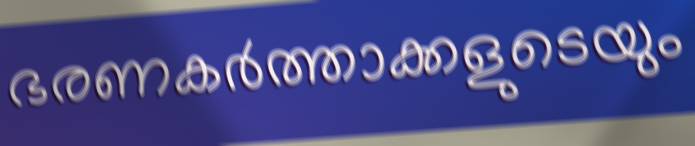
ഭരണകർത്താക്കളുടെയും